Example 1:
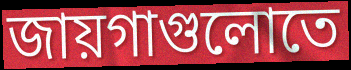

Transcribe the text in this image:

জায়গাগুলোতে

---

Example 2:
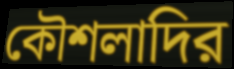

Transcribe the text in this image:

কৌশলাদির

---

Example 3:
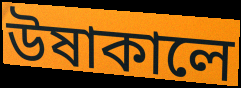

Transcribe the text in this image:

উষাকালে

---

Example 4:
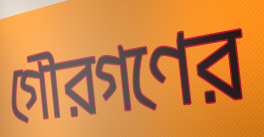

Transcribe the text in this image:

গৌরগণের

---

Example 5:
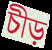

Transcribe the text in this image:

চীড়